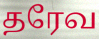
தரேவ